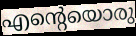
എന്റെയൊരു